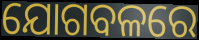
ଯୋଗବଳରେ